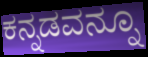
ಕನ್ನಡವನ್ನೂ